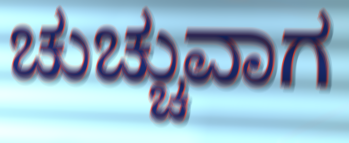
ಚುಚ್ಚುವಾಗ